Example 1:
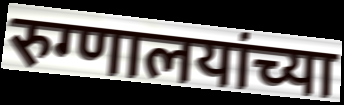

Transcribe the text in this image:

रुग्णालयांच्या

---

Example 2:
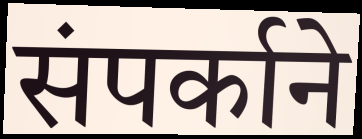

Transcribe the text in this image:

संपर्काने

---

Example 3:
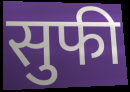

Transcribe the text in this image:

सुफी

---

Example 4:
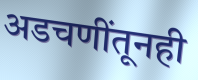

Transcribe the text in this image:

अडचणींतूनही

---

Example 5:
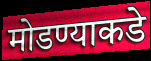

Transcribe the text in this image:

मोडण्याकडे